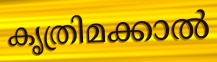
കൃത്രിമക്കാൽ